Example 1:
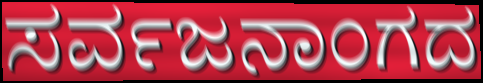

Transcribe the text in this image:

ಸರ್ವಜನಾಂಗದ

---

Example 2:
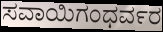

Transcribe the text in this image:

ಸವಾಯಿಗಂಧರ್ವರ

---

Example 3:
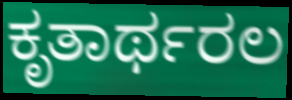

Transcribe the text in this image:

ಕೃತಾರ್ಥರಲ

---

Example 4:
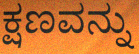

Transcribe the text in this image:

ಕ್ಷಣವನ್ನು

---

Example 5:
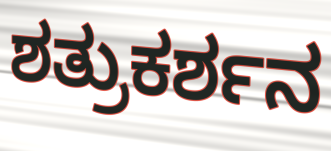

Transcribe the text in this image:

ಶತ್ರುಕರ್ಶನ